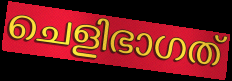
ചെളിഭാഗത്